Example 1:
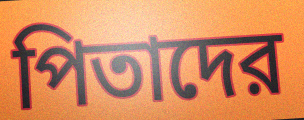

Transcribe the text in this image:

পিতাদের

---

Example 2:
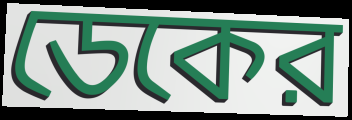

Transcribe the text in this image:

ডেকের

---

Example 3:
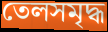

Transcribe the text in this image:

তেলসমৃদ্ধ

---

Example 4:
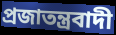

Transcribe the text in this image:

প্রজাতন্ত্রবাদী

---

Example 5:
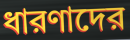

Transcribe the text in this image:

ধারণাদের